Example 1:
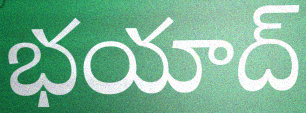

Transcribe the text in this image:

భయాద్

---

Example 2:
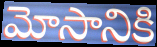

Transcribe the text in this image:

మోసానికి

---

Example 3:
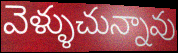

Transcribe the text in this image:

వెళ్ళుచున్నావు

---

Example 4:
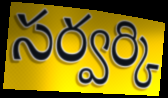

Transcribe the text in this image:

సర్వర్కి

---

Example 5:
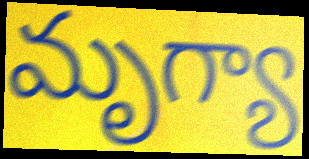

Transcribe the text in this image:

మృగ్యా